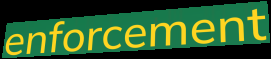
enforcement